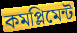
কমপ্লিমেন্ট